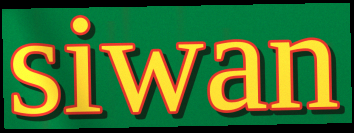
siwan